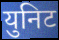
युनिट